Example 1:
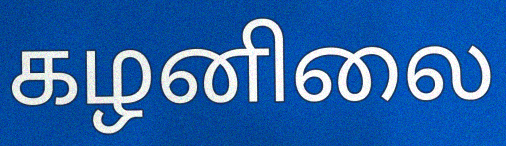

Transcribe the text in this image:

கழனிலை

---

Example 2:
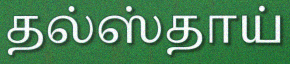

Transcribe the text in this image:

தல்ஸ்தாய்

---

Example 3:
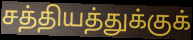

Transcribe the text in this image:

சத்தியத்துக்குக்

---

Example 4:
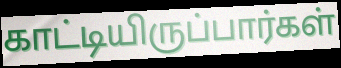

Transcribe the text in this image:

காட்டியிருப்பார்கள்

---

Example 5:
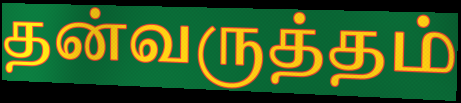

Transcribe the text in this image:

தன்வருத்தம்